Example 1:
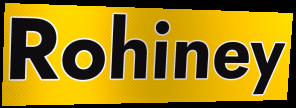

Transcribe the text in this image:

Rohiney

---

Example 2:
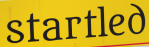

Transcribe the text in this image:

startled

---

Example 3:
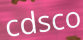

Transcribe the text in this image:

cdsco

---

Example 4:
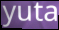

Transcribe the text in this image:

yuta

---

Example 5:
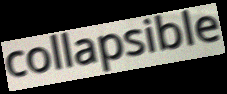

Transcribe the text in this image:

collapsible